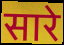
सारे